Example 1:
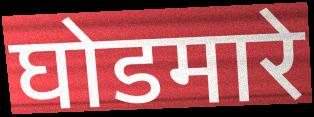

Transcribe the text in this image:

घोडमारे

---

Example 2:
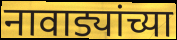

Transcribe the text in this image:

नावाड्यांच्या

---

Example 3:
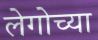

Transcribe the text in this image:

लेगोच्या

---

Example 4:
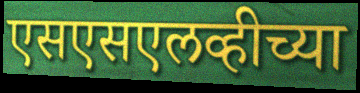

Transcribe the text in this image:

एसएसएलव्हीच्या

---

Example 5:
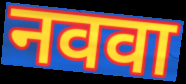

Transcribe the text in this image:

नववा